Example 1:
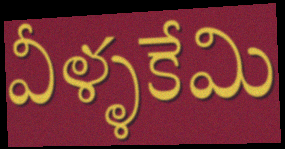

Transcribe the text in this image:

వీళ్ళకేమి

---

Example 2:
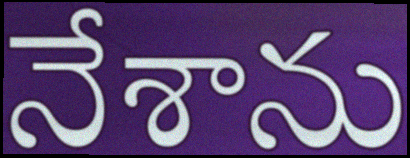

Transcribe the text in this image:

నేశాను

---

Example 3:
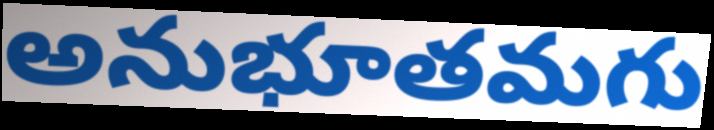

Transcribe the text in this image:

అనుభూతమగు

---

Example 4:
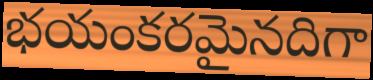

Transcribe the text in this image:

భయంకరమైనదిగా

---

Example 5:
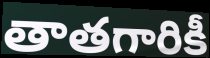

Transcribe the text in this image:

తాతగారికీ